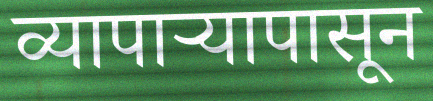
व्यापाऱ्यापासून